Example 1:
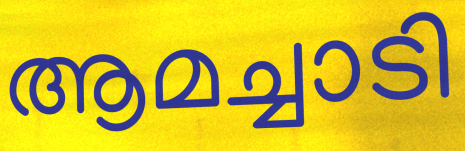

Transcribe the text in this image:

ആമച്ചാടി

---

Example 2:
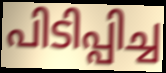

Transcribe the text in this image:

പിടിപ്പിച്ച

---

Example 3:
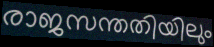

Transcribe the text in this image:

രാജസന്തതിയിലും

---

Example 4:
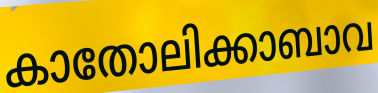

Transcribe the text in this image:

കാതോലിക്കാബാവ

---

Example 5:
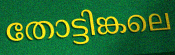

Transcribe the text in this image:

തോട്ടിങ്കലെ